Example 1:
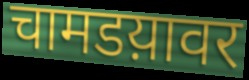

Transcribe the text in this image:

चामडय़ावर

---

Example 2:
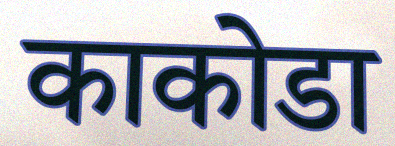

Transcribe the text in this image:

काकोडा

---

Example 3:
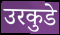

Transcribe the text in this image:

उरकुडे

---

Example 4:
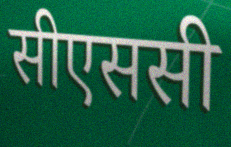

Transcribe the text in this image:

सीएससी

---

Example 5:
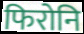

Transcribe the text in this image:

फिरोनि